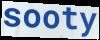
sooty